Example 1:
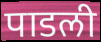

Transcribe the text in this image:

पाडली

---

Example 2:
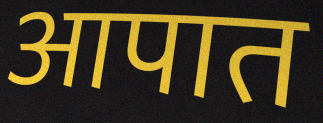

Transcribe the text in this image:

आपात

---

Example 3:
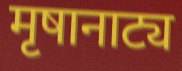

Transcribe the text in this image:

मृषानाट्य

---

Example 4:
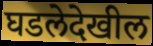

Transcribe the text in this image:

घडलेदेखील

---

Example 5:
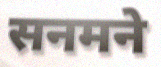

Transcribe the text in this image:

सनमने